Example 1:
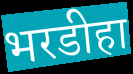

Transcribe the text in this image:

भरडीहा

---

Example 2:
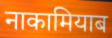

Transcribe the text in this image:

नाकामियाब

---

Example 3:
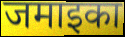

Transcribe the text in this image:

जमाइका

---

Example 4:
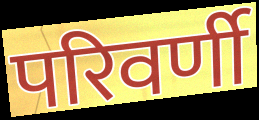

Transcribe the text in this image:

परिवर्णी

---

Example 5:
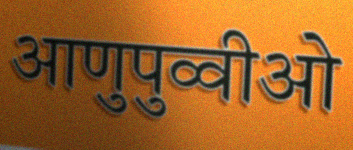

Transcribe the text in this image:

आणुपुव्वीओ